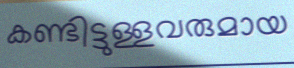
കണ്ടിട്ടുള്ളവരുമായ